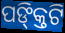
ପଙ୍କ୍ତିଟି